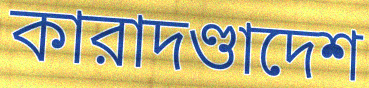
কারাদণ্ডাদেশ